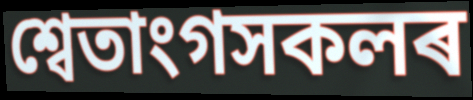
শ্বেতাংগসকলৰ